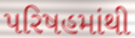
પરિષહમાંથી